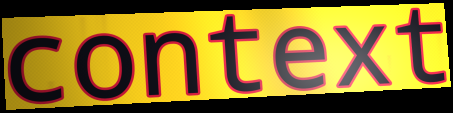
context